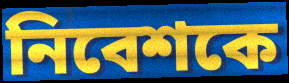
নিবেশকে